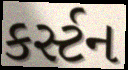
કર્સ્ટન